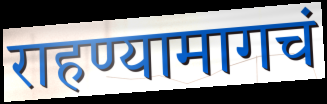
राहण्यामागचं